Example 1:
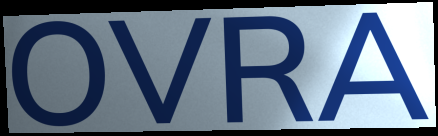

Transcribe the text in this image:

OVRA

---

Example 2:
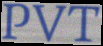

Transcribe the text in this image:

PVT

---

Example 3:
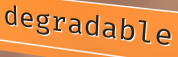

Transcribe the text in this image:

degradable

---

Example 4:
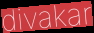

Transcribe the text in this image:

divakar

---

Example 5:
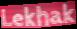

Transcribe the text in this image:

Lekhak